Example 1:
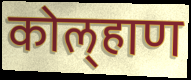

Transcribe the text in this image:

कोल्हाण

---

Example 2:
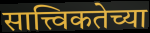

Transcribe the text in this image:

सात्त्विकतेच्या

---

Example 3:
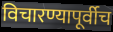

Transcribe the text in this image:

विचारण्यापूर्वीच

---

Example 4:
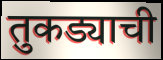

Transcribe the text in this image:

तुकड्याची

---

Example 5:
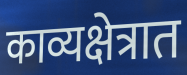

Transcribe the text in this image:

काव्यक्षेत्रात